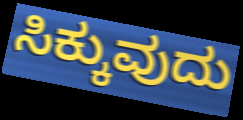
ಸಿಕ್ಕುವುದು